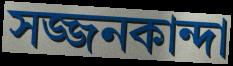
সজ্জনকান্দা